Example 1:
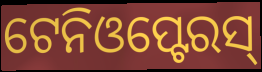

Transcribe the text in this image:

ଟେନିଓପ୍ଟେରସ୍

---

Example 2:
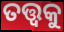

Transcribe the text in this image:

ତତ୍ତ୍ଵକୁ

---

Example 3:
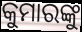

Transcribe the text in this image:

କୁମାରଙ୍କୁ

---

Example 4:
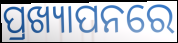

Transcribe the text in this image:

ପ୍ରଖ୍ୟାପନରେ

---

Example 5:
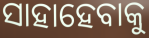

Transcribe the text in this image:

ସାହାହେବାକୁ